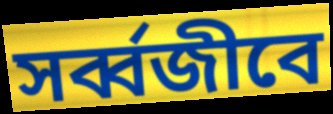
সর্ব্বজীবে